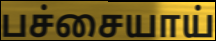
பச்சையாய்